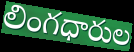
లింగధారుల